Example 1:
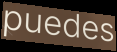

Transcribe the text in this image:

puedes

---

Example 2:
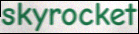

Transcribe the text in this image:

skyrocket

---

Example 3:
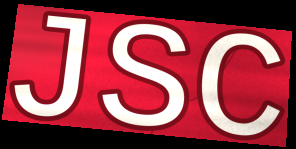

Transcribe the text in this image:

JSC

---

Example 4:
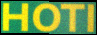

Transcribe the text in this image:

HOTI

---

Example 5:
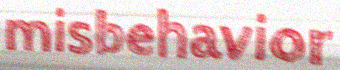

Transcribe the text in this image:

misbehavior